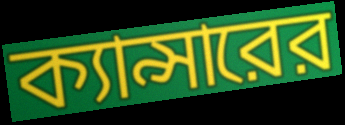
ক্যান্সারের